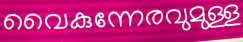
വൈകുന്നേരവുമുള്ള